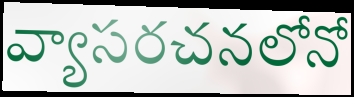
వ్యాసరచనలోనో